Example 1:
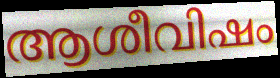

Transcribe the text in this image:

ആശീവിഷം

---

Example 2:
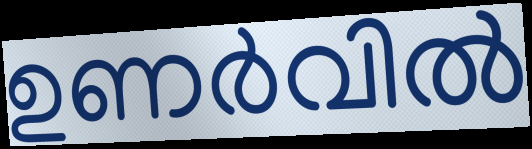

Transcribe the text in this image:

ഉണർവിൽ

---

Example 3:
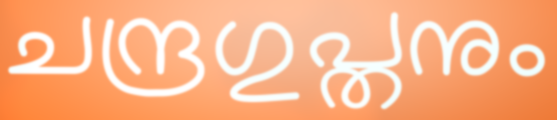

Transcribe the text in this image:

ചന്ദ്രഗുപ്തനും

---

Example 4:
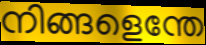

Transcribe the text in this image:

നിങ്ങളെന്തേ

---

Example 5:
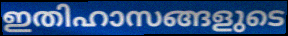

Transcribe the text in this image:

ഇതിഹാസങ്ങളുടെ